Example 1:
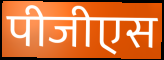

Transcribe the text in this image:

पीजीएस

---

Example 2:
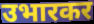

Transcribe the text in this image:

उभारकर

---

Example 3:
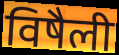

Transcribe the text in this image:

विषैली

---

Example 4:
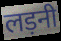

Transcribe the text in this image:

लड़नी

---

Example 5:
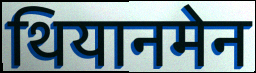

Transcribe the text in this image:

थियानमेन